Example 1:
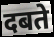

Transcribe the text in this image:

दबते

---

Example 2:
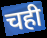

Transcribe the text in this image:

चही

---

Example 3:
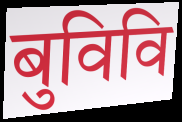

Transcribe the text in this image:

बुविवि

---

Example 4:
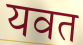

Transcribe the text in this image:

यवत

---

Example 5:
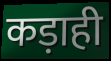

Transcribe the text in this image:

कड़ाही